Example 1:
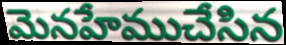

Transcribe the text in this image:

మెనహేముచేసిన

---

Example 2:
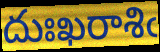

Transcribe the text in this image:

దుఃఖరాశిఁ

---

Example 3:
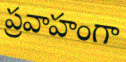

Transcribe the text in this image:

ప్రవాహంగా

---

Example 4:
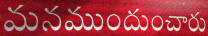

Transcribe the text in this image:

మనముందుంచారు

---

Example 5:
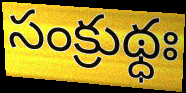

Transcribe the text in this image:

సంక్రుథ్ధః